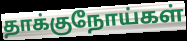
தாக்குநோய்கள்